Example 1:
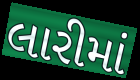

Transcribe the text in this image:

લારીમાં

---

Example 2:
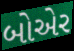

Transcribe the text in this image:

બોએર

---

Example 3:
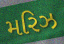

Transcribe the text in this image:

મરિઝ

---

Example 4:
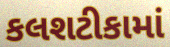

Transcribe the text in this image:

કલશટીકામાં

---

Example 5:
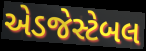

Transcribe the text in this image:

એડજેસ્ટેબલ